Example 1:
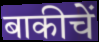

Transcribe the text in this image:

बाकीचें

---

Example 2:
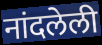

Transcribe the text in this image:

नांदलेली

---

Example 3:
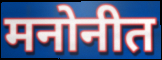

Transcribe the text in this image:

मनोनीत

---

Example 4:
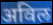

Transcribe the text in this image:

अविल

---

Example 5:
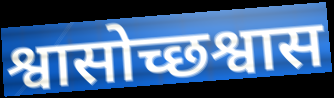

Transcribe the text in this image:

श्वासोच्छश्वास